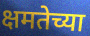
क्षमतेच्या